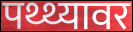
पथ्थ्यावर